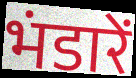
भंडारें